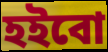
হইবো